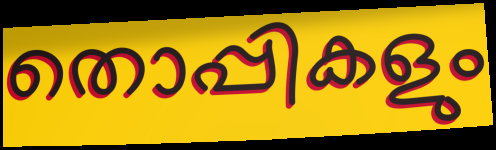
തൊപ്പികളും